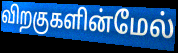
விறகுகளின்மேல்